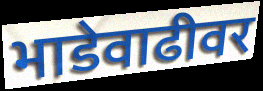
भाडेवाढीवर